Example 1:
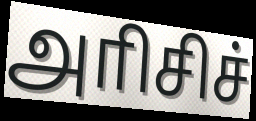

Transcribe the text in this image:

அரிசிச்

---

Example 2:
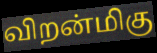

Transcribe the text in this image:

விறன்மிகு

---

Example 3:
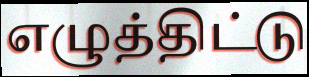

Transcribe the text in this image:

எழுத்திட்டு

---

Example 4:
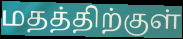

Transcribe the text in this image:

மதத்திற்குள்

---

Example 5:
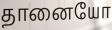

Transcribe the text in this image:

தானையோ